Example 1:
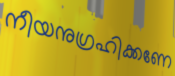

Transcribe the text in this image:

നീയനുഗ്രഹിക്കണേ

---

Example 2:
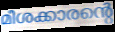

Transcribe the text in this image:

മീശക്കാരന്റെ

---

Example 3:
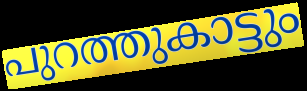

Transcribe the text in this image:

പുറത്തുകാട്ടും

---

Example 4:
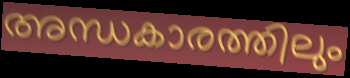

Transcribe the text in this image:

അന്ധകാരത്തിലും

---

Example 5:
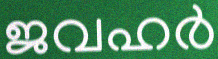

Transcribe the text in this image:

ജവഹർ